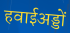
हवाईअड्डों